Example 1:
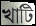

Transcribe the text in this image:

খাটি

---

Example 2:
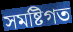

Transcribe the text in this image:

সমষ্টিগত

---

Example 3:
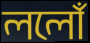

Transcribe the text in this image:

ললোঁ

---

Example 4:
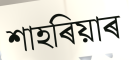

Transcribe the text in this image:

শাহৰিয়াৰ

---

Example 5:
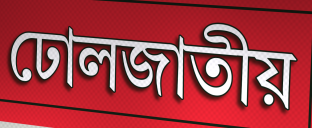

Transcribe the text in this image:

ঢোলজাতীয়